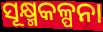
ସୂକ୍ଷ୍ମକଳ୍ପନା